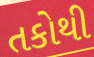
તકોથી